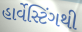
હાર્વેસ્ટિંગથી